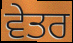
ਵੇਤਰ